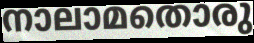
നാലാമതൊരു